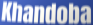
Khandoba